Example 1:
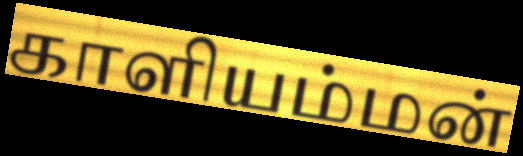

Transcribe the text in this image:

காளியம்மன்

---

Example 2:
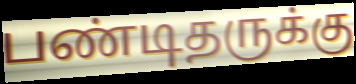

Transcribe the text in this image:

பண்டிதருக்கு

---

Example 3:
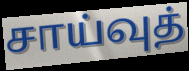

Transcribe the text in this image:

சாய்வுத்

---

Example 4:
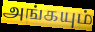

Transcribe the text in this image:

அங்கயும்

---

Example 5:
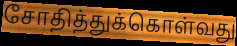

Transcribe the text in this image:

சோதித்துக்கொள்வது